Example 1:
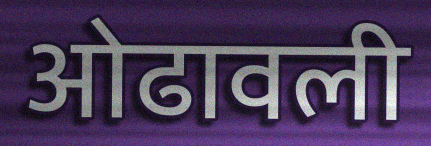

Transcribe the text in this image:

ओढावली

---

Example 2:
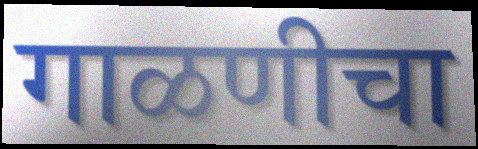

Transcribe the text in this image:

गाळणीचा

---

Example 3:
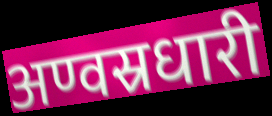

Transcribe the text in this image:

अण्वस्रधारी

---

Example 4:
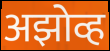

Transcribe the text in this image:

अझोव्ह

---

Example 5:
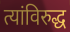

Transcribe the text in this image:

त्यांविरुद्ध